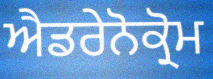
ਐਡਰੇਨੋਕ੍ਰੋਮ